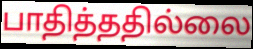
பாதித்ததில்லை